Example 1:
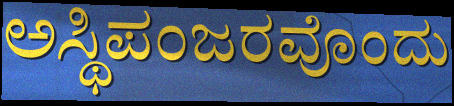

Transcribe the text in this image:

ಅಸ್ಥಿಪಂಜರವೊಂದು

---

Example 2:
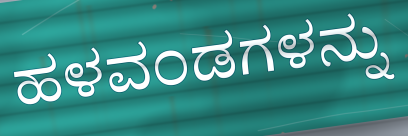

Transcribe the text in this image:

ಹಳವಂಡಗಳನ್ನು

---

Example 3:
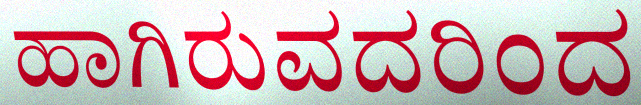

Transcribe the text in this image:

ಹಾಗಿರುವದರಿಂದ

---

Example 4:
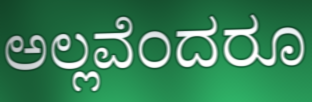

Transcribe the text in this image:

ಅಲ್ಲವೆಂದರೂ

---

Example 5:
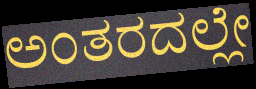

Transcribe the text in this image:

ಅಂತರದಲ್ಲೇ